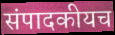
संपादकीयच